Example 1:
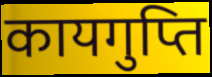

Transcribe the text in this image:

कायगुप्ति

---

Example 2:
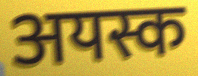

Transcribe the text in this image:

अयस्क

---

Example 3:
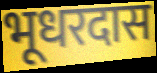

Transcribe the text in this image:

भूधरदास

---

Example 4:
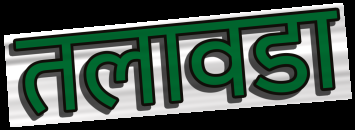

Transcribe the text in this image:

तलावडा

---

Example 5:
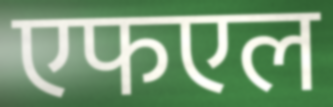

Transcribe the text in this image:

एफएल